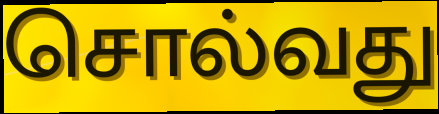
சொல்வது